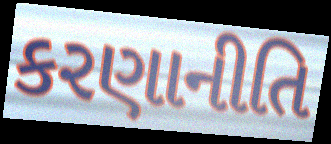
કરણાનીતિ